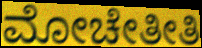
ಮೋಚೇತೀತಿ